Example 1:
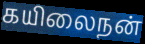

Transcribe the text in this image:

கயிலைநன்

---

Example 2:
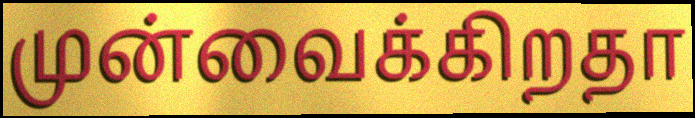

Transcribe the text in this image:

முன்வைக்கிறதா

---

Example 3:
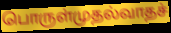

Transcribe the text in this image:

பொருள்முதல்வாதச்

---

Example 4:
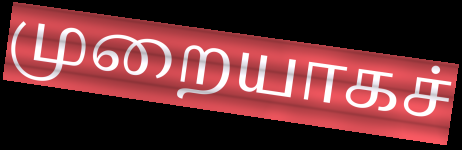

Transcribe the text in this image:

முறையாகச்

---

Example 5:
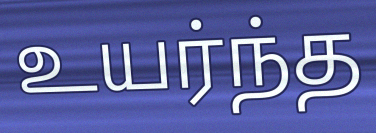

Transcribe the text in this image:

உயர்ந்த